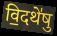
वि॒दथे॑षु